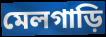
মেলগাড়ি